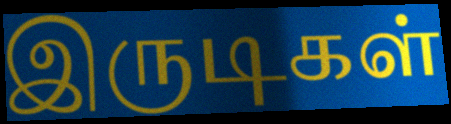
இருடிகள்